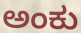
ಅಂಕು